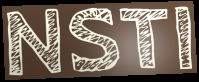
NSTI